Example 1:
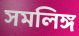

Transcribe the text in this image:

সমলিঙ্গ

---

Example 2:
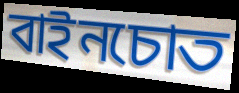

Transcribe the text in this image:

বাইনচোত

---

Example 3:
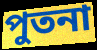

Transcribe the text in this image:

পুতনা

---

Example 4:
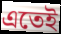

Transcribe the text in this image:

এতেই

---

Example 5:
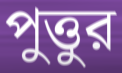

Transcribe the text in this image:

পুত্তুর